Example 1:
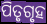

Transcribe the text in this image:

ପିତୃଗୃହ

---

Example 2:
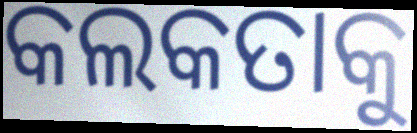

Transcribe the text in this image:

କଲକତାକୁ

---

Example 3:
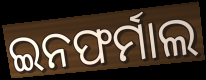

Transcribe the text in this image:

ଇନଫର୍ମାଲ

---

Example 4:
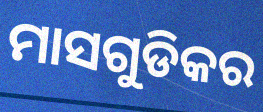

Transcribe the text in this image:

ମାସଗୁଡିକର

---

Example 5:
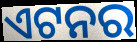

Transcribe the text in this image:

ଏଟନର